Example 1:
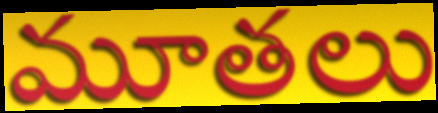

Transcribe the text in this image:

మూతలు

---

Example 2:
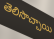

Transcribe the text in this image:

తెలిసొచ్చాయి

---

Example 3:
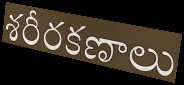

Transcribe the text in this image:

శరీరకణాలు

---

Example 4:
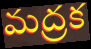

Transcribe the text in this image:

మద్రక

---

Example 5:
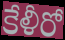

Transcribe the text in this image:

కేళీరో